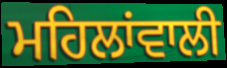
ਮਹਿਲਾਂਵਾਲੀ